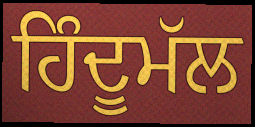
ਹਿੰਦੂਮੱਲ